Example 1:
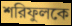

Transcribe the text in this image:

শরিফুলকে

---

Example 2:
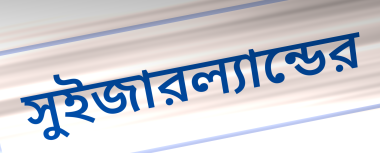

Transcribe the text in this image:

সুইজারল্যান্ডের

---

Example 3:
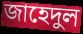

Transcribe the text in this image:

জাহেদুল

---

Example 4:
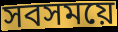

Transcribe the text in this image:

সবসময়ে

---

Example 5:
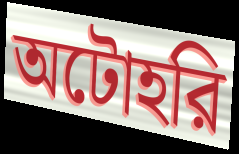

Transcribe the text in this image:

অটোহরি